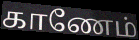
காணேம்